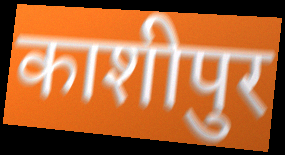
काशीपुर